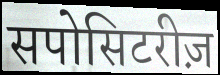
सपोसिटरीज़